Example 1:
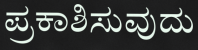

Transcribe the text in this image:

ಪ್ರಕಾಶಿಸುವುದು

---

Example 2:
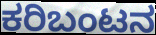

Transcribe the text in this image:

ಕರಿಬಂಟನ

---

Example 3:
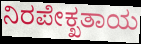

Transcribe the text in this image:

ನಿರಪೇಕ್ಖತಾಯ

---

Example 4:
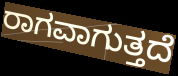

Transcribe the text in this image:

ರಾಗವಾಗುತ್ತದೆ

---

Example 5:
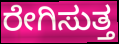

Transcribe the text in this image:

ರೇಗಿಸುತ್ತ